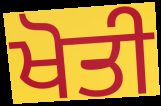
ਖੋਤੀ